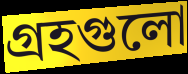
গ্রহগুলো